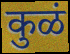
कुळं